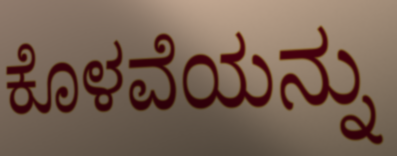
ಕೊಳವೆಯನ್ನು